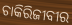
ଚାକିରିଜୀବୀର